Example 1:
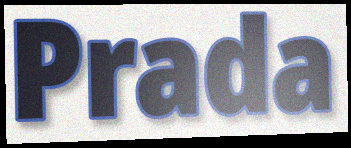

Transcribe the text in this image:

Prada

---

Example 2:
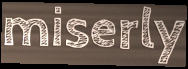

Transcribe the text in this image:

miserly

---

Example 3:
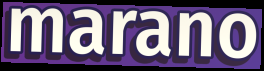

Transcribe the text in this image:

marano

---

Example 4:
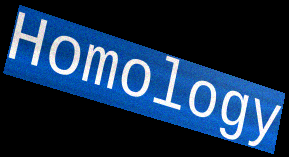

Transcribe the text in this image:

Homology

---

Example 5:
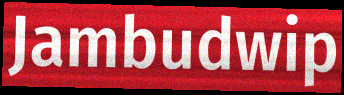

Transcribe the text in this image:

Jambudwip